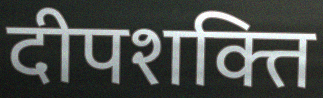
दीपशक्ति